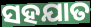
ସହଯାତ